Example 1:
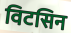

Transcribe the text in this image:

विटसिन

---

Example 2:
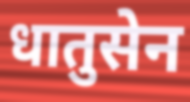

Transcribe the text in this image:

धातुसेन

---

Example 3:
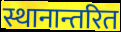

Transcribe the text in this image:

स्थानान्तरित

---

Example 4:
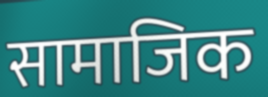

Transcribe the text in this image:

सामाजिक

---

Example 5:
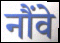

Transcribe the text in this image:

नौंवे